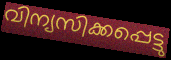
വിന്യസിക്കപ്പെട്ടു